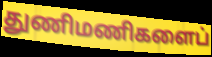
துணிமணிகளைப்